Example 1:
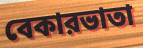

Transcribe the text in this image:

বেকারভাতা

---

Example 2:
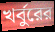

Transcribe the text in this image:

খর্বুরের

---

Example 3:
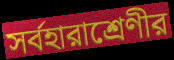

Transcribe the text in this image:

সর্বহারাশ্রেণীর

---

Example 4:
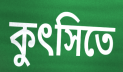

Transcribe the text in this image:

কুৎসিতে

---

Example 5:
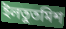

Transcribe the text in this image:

ইলতুতমিশ